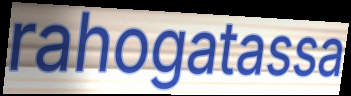
rahogatassa